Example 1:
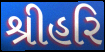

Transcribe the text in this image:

શ્રીહરિ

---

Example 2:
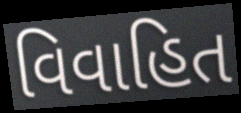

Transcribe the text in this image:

વિવાહિત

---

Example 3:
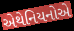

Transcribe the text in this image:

એથેનિયનોએ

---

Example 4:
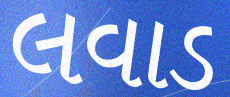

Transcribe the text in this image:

લવાડ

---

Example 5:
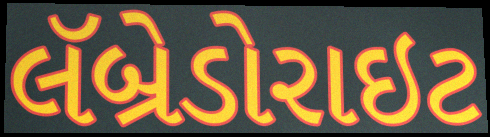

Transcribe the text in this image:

લૅબ્રેડોરાઇટ